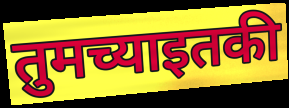
तुमच्याइतकी